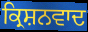
ਕ੍ਰਿਸ਼ਨਵਾਦ